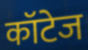
कॉटेज